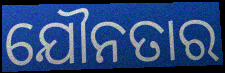
ଯୌନତାର